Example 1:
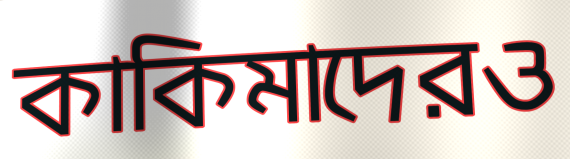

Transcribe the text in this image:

কাকিমাদেরও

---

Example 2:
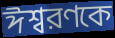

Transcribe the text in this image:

ঈশ্বরণকে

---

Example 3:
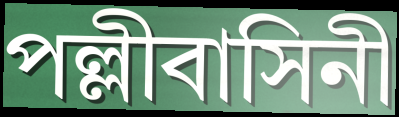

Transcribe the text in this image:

পল্লীবাসিনী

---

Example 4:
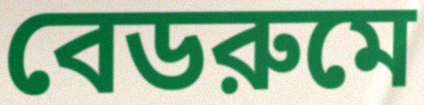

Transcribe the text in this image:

বেডরুমে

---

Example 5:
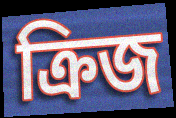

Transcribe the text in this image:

ক্রিজ